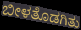
ಬೀಳತೊಡಗಿತು